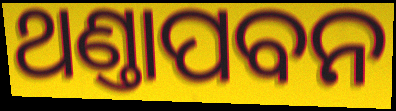
ଥଣ୍ତାପବନ